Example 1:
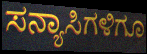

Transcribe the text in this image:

ಸನ್ಯಾಸಿಗಳಿಗೂ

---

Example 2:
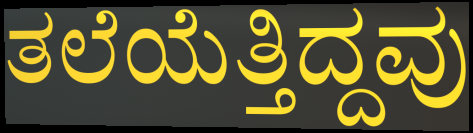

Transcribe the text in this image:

ತಲೆಯೆತ್ತಿದ್ದವು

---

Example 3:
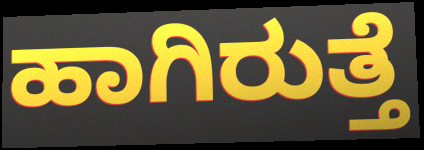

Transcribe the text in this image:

ಹಾಗಿರುತ್ತೆ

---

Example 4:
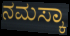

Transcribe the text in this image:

ನಮಸ್ಕಾ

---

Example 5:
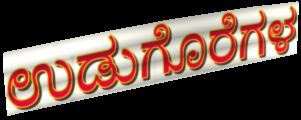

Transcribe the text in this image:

ಉಡುಗೊರೆಗಳ